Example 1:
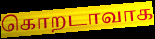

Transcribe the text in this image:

கொறடாவாக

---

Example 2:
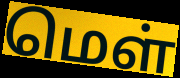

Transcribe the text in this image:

மெள்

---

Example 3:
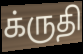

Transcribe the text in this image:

க்ருதி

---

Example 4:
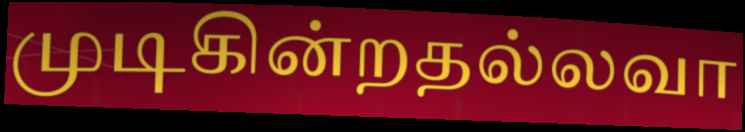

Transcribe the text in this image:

முடிகின்றதல்லவா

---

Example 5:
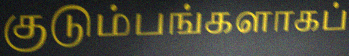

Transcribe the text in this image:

குடும்பங்களாகப்